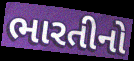
ભારતીનો